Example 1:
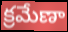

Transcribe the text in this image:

క్రమేణా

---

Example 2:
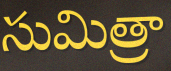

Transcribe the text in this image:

సుమిత్రా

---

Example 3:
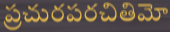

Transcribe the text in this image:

ప్రచురపరచితిమో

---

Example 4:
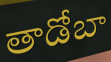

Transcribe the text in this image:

తాడోబా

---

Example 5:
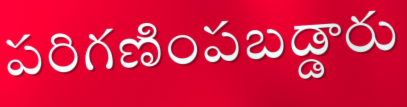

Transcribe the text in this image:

పరిగణింపబడ్డారు